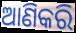
ଆଣିକରି